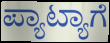
ಪ್ಯಾಟ್ಯಾಗೆ